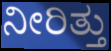
ನೀರಿತ್ತು